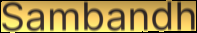
Sambandh